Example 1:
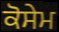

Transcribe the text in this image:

ਕੋਸੇਮ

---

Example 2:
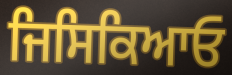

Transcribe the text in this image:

ਜਿਸਿਕਿਆਓ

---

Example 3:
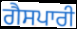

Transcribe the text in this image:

ਗੈਸਪਾਰੀ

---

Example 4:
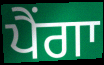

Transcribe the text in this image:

ਪੈਂਗਾ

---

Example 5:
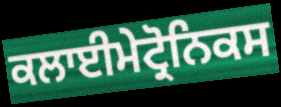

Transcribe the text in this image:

ਕਲਾਈਮੇਟ੍ਰੋਨਿਕਸ